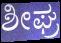
ಶೀಘ್ರ